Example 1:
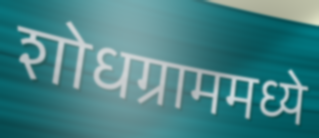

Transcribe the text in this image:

शोधग्राममध्ये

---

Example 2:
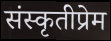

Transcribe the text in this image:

संस्कृतीप्रेम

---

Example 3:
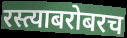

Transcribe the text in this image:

रस्त्याबरोबरच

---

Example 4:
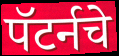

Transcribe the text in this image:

पॅटर्नचे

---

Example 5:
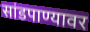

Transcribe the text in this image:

सांडपाण्यावर